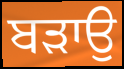
ਬਡ਼ਾਉ